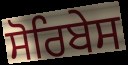
ਸੋਰਿਬੇਸ